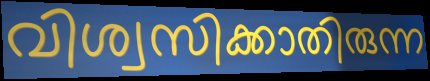
വിശ്വസിക്കാതിരുന്ന